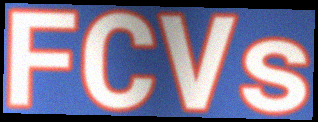
FCVs